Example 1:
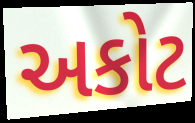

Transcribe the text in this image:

અકોટ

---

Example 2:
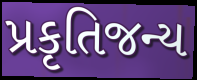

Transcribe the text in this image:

પ્રકૃતિજન્ય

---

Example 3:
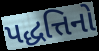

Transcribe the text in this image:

પદ્ધત્તિનો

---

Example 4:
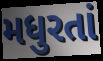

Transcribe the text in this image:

મધુરતાં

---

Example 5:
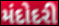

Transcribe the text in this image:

મંદોદરી